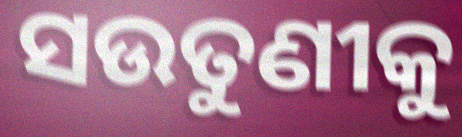
ସଉତୁଣୀକୁ